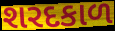
શરદકાળ